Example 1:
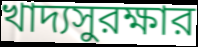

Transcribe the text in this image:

খাদ্যসুরক্ষার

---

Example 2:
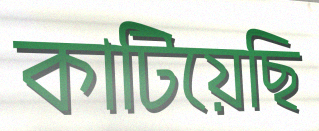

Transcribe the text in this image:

কাটিয়েছি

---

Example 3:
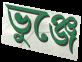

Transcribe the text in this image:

ভুঞ্জে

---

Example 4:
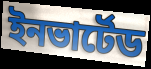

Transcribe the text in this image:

ইনভার্টেড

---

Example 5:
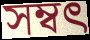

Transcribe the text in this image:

সম্বৎ